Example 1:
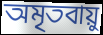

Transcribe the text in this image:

অমৃতবায়ু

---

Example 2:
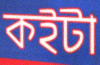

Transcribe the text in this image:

কইটা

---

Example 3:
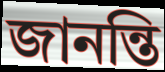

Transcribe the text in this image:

জানন্তি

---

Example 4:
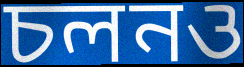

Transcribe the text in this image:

চলনও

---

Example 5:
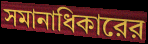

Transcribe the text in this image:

সমানাধিকারের